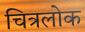
चित्रलोक